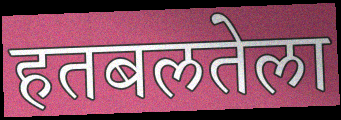
हतबलतेला